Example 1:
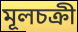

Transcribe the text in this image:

মূলচক্রী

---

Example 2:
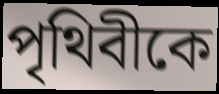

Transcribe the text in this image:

পৃথিবীকে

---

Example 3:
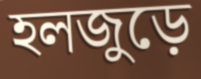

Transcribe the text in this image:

হলজুড়ে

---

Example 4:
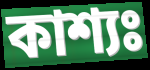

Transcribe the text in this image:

কাশ্যঃ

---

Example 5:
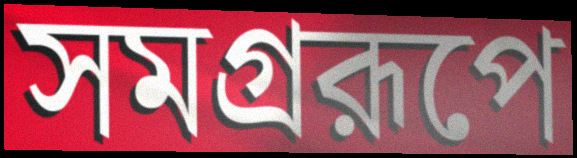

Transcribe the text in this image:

সমগ্ররূপে